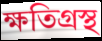
ক্ষতিগ্রস্থ